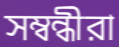
সম্বন্ধীরা